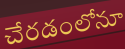
చేరడంలోనూ